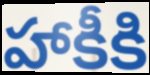
హాకీకి